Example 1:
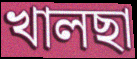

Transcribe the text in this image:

খালছা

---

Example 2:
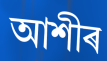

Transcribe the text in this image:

আশীৰ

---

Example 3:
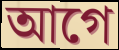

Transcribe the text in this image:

আগে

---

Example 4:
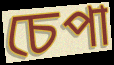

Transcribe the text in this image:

চেপা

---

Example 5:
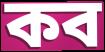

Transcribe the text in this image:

কব